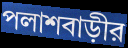
পলাশবাড়ীর